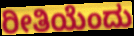
ರೀತಿಯೆಂದು